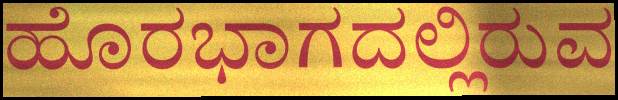
ಹೊರಭಾಗದಲ್ಲಿರುವ